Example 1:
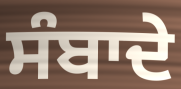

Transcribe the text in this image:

ਸੰਬਾਦੇ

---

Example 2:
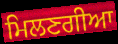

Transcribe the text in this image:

ਮਿਲਣਗੀਆ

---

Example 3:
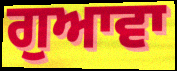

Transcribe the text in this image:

ਗੁਆਵਾ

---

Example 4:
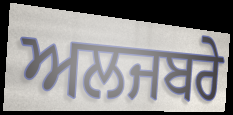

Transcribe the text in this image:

ਅਲਜਬਰੇ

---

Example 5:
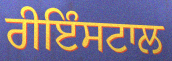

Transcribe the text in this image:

ਰੀਇੰਸਟਾਲ